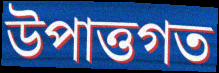
উপাত্তগত